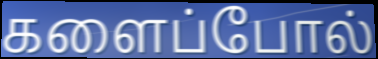
களைப்போல்